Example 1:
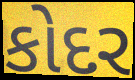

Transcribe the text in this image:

કોદર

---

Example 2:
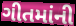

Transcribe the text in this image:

ગીતમાંની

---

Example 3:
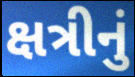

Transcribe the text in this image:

ક્ષત્રીનું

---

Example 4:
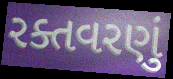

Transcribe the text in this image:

રક્તવરણું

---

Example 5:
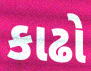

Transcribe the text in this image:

કાઢો